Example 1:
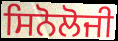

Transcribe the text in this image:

ਸਿਨੋਲੋਜੀ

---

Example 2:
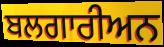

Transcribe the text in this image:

ਬਲਗਾਰੀਅਨ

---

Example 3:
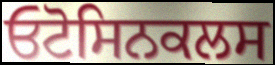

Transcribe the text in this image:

ਓਟੋਸਿਨਕਲਸ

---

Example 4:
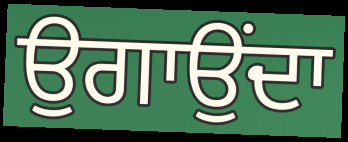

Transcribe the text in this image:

ਉਗਾਉਂਦਾ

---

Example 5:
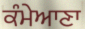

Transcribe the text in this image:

ਕੰਮੇਆਣਾ